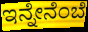
ಇನ್ನೇನೆಂಬೆ